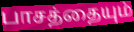
பாசத்தையும்